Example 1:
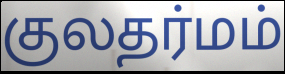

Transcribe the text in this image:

குலதர்மம்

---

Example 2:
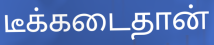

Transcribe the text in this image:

டீக்கடைதான்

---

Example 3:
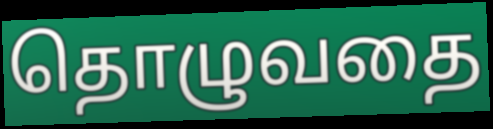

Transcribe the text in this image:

தொழுவதை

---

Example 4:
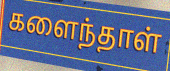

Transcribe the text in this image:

களைந்தாள்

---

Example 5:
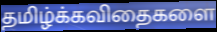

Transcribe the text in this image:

தமிழ்க்கவிதைகளை